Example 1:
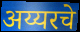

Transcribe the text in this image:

अय्यरचे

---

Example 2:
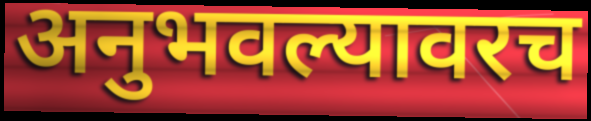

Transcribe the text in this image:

अनुभवल्यावरच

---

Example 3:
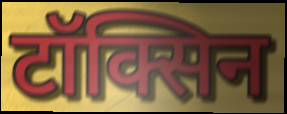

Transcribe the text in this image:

टॉक्सिन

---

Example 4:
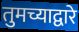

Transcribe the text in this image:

तुमच्याद्वारे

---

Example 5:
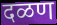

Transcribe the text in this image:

दळण